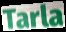
Tarla